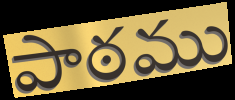
పాఠము